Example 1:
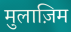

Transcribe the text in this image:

मुलाज़िम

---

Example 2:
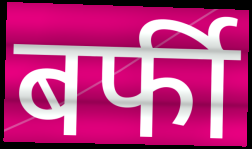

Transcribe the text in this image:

बर्फी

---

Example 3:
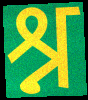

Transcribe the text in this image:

श्न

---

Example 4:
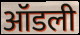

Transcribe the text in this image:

ऑडली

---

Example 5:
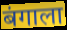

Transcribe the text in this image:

बंगाला